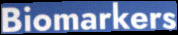
Biomarkers